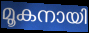
മൂകനായി